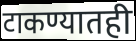
टाकण्यातही